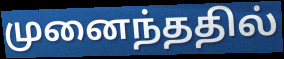
முனைந்ததில்